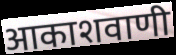
आकाशवाणी